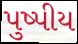
પુષ્પીય